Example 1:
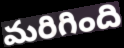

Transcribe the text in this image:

మరిగింది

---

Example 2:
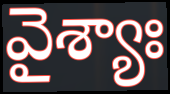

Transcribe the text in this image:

వైశ్యాః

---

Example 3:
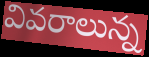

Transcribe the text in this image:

వివరాలున్న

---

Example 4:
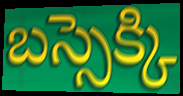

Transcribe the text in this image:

బస్సెక్కి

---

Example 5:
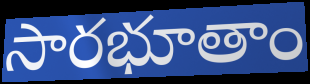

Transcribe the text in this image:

సారభూతాం